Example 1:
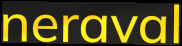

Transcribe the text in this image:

neraval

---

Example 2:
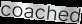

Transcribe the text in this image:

coached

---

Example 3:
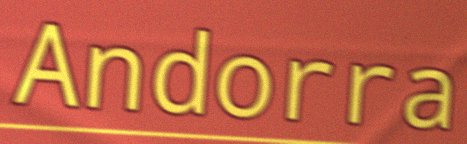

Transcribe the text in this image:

Andorra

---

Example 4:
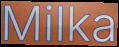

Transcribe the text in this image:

Milka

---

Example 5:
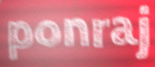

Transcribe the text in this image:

ponraj